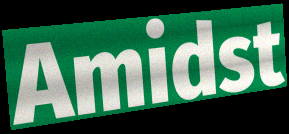
Amidst